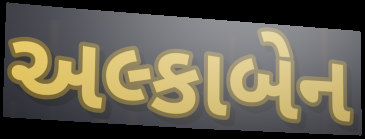
અલ્કાબેન